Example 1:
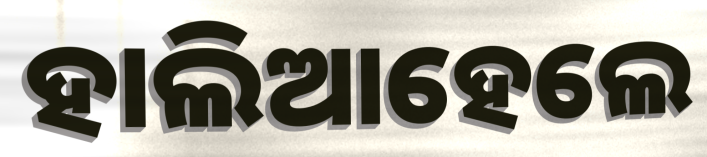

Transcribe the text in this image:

ହାଲିଆହେଲେ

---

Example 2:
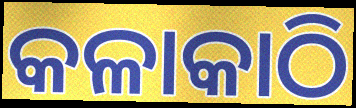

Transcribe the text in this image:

କଳାକାଠି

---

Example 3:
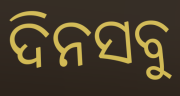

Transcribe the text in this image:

ଦିନସବୁ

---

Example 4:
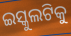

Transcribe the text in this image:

ଇସ୍କୁଲଟିକୁ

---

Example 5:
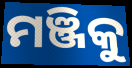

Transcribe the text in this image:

ମଞ୍ଜିକୁ